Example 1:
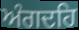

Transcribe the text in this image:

ਅੰਗਦਹਿ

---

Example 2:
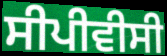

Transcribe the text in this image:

ਸੀਪੀਵੀਸੀ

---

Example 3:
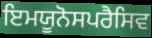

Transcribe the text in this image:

ਇਮਯੂਨੋਸਪਰੈਸਿਵ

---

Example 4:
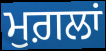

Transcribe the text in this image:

ਮੁਗ਼ਲਾਂ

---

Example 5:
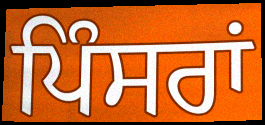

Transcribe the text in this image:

ਪਿੰਸਰਾਂ